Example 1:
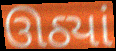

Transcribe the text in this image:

ઊઠ્યાં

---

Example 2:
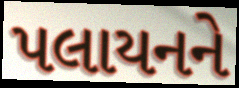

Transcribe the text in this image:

પલાયનને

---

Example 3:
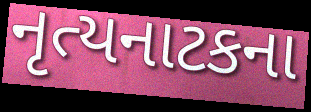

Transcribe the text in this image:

નૃત્યનાટકના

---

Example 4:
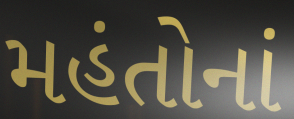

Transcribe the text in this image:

મહંતોનાં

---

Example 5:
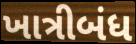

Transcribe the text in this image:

ખાત્રીબંધ